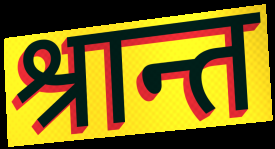
श्रान्त